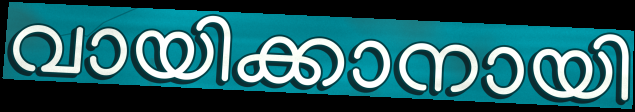
വായിക്കാനായി